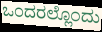
ಒಂದರಲ್ಲೊಂದು